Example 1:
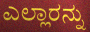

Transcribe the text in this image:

ಎಲ್ಲಾರನ್ನು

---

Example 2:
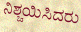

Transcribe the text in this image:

ನಿಶ್ಚಯಿಸಿದರು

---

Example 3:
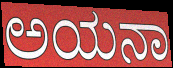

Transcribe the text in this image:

ಅಯನಾ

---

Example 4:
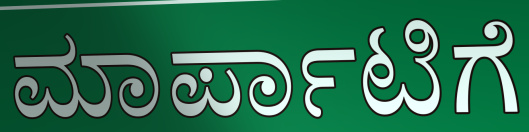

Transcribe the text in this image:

ಮಾರ್ಪಾಟಿಗೆ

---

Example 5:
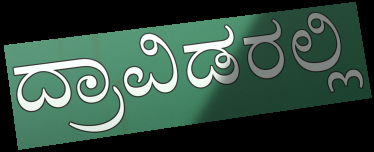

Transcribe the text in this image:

ದ್ರಾವಿಡರಲ್ಲಿ